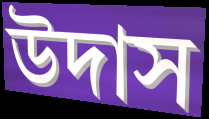
উদাস